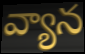
వ్యాన